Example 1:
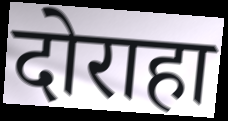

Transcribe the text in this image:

दोराहा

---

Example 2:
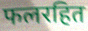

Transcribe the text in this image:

फलरहित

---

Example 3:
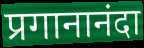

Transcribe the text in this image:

प्रगानानंदा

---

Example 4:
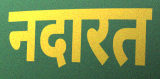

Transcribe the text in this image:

नदारत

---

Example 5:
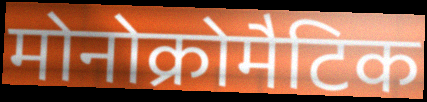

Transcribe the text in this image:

मोनोक्रोमैटिक